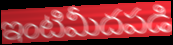
ఇంటిమీదపడి